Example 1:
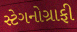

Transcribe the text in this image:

સ્ટેગનોગ્રાફી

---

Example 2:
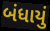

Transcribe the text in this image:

બંધાયું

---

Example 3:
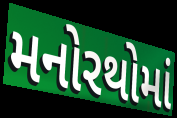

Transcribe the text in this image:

મનોરથોમાં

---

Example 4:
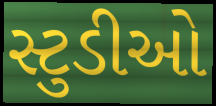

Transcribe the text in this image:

સ્ટુડીઓ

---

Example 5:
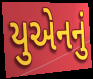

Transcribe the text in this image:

યુએનનું